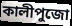
কালীপুজো